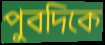
পুবদিকে